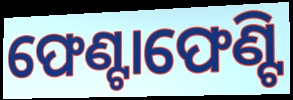
ଫେଣ୍ଟାଫେଣ୍ଟି